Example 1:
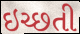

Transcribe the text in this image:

ઇચ્છતી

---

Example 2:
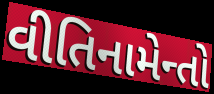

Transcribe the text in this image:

વીતિનામેન્તો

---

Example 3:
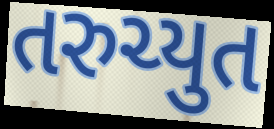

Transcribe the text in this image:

તરુચ્યુત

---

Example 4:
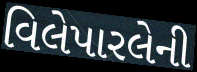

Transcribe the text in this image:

વિલેપારલેની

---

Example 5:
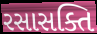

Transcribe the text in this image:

રસાસક્તિ